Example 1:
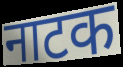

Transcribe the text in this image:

नाटक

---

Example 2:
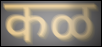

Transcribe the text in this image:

कळ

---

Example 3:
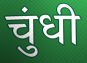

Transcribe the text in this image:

चुंधी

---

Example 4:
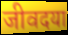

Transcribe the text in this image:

जीवदया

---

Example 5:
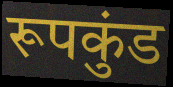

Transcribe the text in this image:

रूपकुंड